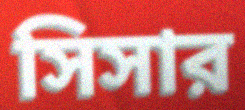
সিসার